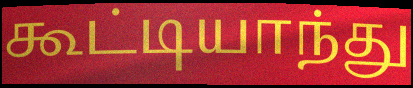
கூட்டியாந்து